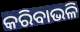
କରିବାଭଳି